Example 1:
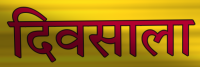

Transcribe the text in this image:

दिवसाला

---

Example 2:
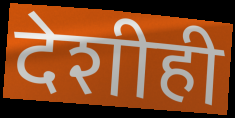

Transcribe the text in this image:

देशीही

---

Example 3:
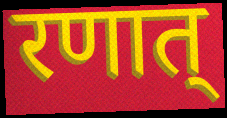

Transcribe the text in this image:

रणात्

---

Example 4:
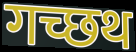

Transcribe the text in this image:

गच्छथ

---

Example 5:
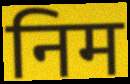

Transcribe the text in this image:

निम